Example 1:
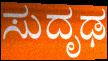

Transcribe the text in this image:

ಸುದೃಢ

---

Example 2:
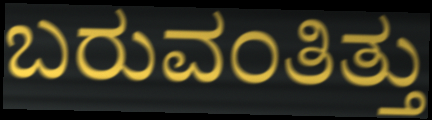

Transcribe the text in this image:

ಬರುವಂತಿತ್ತು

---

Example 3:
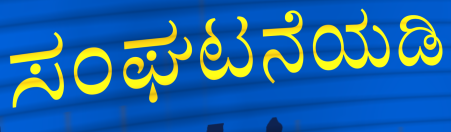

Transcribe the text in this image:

ಸಂಘಟನೆಯಡಿ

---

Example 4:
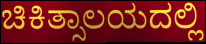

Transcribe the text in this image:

ಚಿಕಿತ್ಸಾಲಯದಲ್ಲಿ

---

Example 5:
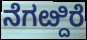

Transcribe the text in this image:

ನೆಗೞ್ದಿರೆ